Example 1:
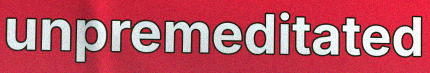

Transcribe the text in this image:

unpremeditated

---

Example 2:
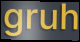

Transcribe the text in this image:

gruh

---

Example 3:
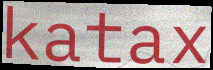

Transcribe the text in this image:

katax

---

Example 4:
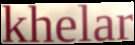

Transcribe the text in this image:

khelar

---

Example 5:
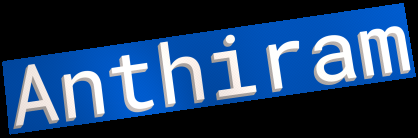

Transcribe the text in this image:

Anthiram